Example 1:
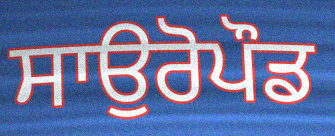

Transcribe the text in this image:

ਸਾਉਰੋਪੌਡ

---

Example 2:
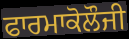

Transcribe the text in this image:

ਫਾਰਮਾਕੋਲੌਜੀ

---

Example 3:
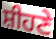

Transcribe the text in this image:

ਸ਼ੀਹਣੇ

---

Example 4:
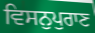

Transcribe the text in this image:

ਵਿਸਨੁਪੁਰਾਣ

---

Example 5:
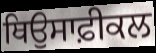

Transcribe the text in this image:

ਥਿਉਸਾਫ਼ੀਕਲ